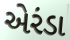
એરંડા